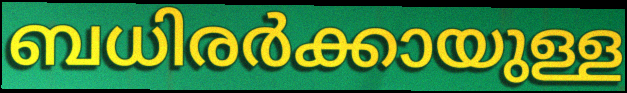
ബധിരർക്കായുള്ള